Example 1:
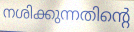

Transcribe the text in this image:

നശിക്കുന്നതിന്റെ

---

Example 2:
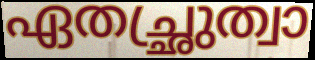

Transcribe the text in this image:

ഏതച്ഛ്രുത്വാ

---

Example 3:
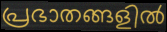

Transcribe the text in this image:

പ്രഭാതങ്ങളിൽ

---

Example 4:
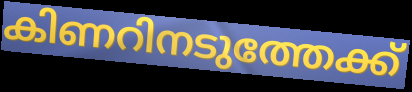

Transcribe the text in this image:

കിണറിനടുത്തേക്ക്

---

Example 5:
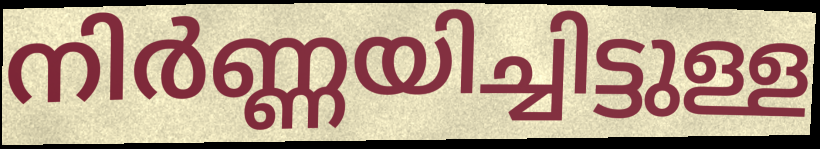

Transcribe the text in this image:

നിർണ്ണയിച്ചിട്ടുള്ള